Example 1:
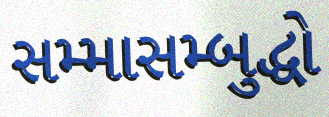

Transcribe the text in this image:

સમ્માસમ્બુદ્ધો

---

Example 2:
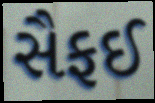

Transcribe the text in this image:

સૈફઈ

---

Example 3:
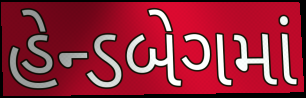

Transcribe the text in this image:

હેન્ડબેગમાં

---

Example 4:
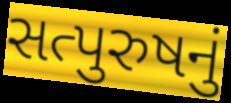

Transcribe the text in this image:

સત્પુરુષનું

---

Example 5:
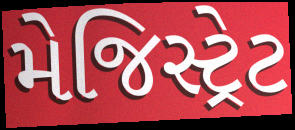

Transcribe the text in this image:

મેજિસ્ટ્રેટ